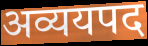
अव्ययपद